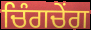
ਚਿੰਗਚੇਂਗ